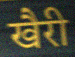
खैरी